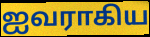
ஐவராகிய